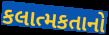
કલાત્મકતાનો